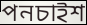
পনচাইশ